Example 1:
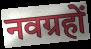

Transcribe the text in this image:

नवग्रहों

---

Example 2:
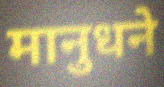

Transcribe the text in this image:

मानुधने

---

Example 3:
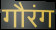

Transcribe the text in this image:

गौरंग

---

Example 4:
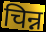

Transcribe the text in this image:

चिन्न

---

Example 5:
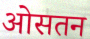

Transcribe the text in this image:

ओसतन